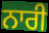
ਨਾਰੀ